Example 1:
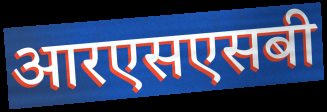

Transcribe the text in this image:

आरएसएसबी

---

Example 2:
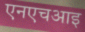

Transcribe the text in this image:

एनएचआइ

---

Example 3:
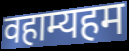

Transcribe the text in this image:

वहाम्यहम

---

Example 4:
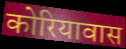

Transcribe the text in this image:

कोरियावास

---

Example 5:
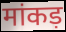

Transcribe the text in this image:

मांकड़